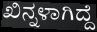
ಖಿನ್ನಳಾಗಿದ್ದೆ